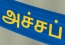
அச்சப்